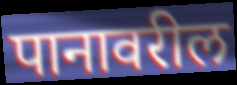
पानावरील